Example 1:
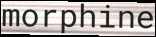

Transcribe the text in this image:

morphine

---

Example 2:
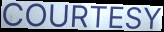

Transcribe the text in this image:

COURTESY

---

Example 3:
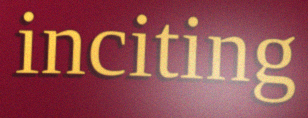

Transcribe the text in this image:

inciting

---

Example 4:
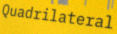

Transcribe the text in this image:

Quadrilateral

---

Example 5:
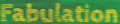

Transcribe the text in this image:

Fabulation